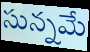
సున్నమే